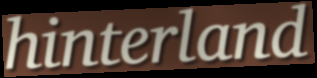
hinterland